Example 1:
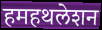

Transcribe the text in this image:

हमहथलेशन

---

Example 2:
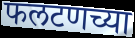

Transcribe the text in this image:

फलटणच्या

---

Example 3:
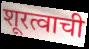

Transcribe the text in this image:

शूरत्वाची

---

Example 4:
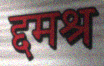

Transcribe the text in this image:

द्दमश्र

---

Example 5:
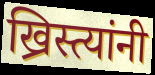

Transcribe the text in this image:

ख्रिस्त्यांनी